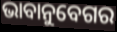
ଭାବାନୁବେଗର